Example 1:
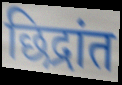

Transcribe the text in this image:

छिद्रांत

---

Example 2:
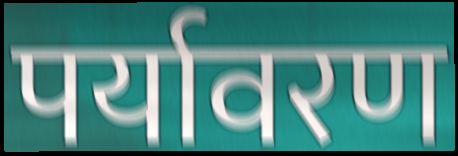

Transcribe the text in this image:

पर्यावरण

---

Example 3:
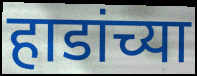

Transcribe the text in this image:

हाडांच्या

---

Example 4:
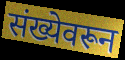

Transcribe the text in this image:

संख्येवरून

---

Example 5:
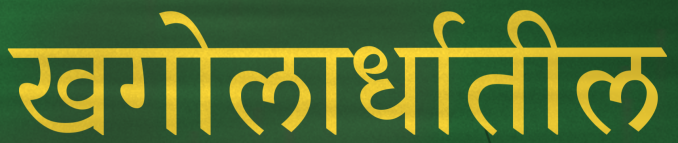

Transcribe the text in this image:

खगोलार्धातील